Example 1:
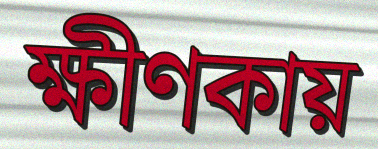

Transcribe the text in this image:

ক্ষীণকায়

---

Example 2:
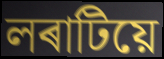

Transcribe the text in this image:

লৰাটিয়ে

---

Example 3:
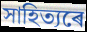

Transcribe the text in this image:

সাহিত্যৰে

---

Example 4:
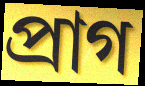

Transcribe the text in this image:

প্ৰাগ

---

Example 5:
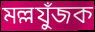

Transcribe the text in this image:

মল্লযুঁজক